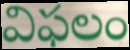
విఫలం